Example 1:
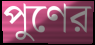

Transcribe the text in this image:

পুণের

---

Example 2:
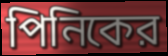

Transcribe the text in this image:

পিনিকের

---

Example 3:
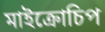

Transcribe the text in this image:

মাইক্রোচিপ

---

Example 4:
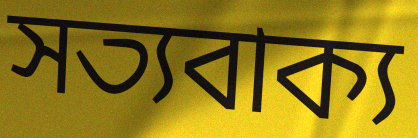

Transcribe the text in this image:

সত্যবাক্য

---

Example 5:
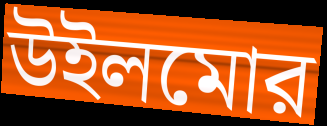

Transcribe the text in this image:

উইলমোর